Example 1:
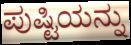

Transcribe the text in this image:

ಪುಷ್ಟಿಯನ್ನು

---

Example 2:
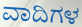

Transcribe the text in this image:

ವಾದಿಗಳ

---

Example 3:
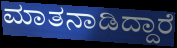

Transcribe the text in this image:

ಮಾತನಾಡಿದ್ದಾರೆ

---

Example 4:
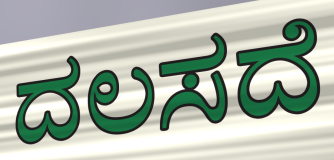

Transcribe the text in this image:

ದಲಸದೆ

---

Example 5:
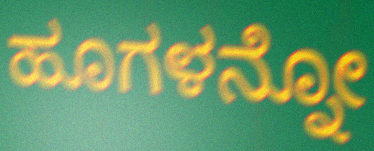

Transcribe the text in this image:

ಹೂಗಳನ್ನೋ